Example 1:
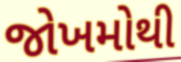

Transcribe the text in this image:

જોખમોથી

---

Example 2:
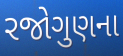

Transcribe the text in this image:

રજોગુણના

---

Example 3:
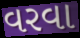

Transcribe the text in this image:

વરવા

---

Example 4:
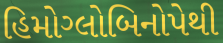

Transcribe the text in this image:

હિમોગ્લોબિનોપેથી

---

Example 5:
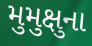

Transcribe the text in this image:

મુમુક્ષુના